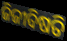
ଜିଜୀବିଷତି